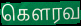
கெளரவ